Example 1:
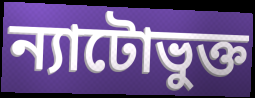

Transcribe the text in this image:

ন্যাটোভুক্ত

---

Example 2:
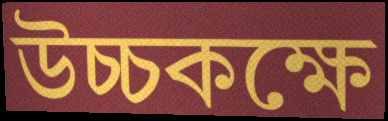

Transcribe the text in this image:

উচ্চকক্ষে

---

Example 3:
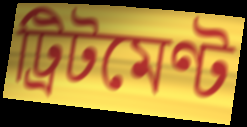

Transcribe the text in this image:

ট্রিটমেণ্ট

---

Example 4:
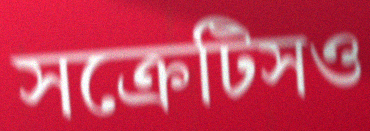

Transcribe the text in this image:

সক্রেটিসও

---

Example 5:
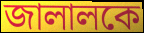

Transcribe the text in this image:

জালালকে